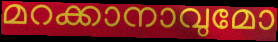
മറക്കാനാവുമോ